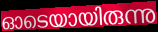
ഓടെയായിരുന്നു